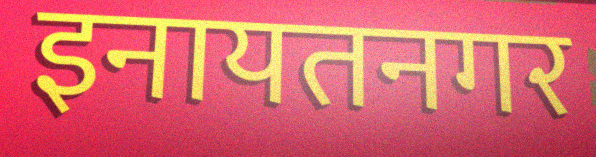
इनायतनगर